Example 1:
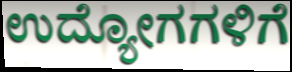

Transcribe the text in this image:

ಉದ್ಯೋಗಗಳಿಗೆ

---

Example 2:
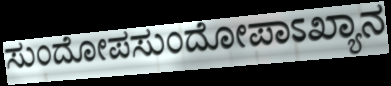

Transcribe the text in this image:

ಸುಂದೋಪಸುಂದೋಪಾಽಖ್ಯಾನ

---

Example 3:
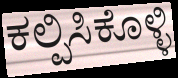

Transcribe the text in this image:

ಕಲ್ಪಿಸಿಕೊಳ್ಳಿ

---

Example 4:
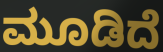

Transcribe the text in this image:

ಮೂಡಿದೆ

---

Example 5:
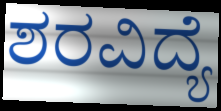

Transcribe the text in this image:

ಶರವಿದ್ಯೆ